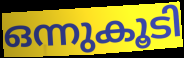
ഒന്നുകൂടി